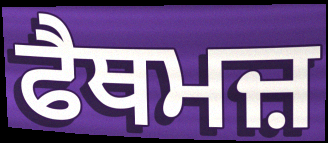
ਫੈਥਮਜ਼